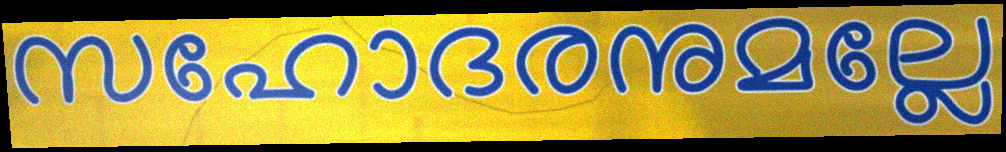
സഹോദരനുമല്ലേ